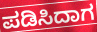
ಪಡಿಸಿದಾಗ